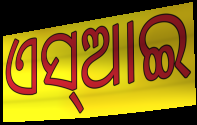
ଏସ୍ଆଇ